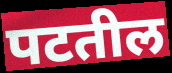
पटतील